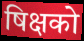
षिक्षको